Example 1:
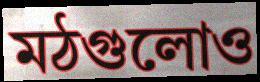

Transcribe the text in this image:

মঠগুলোও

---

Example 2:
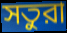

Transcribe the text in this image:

সতুরা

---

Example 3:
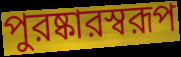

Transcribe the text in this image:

পুরষ্কারস্বরূপ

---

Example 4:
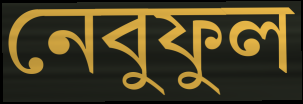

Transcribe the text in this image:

নেবুফুল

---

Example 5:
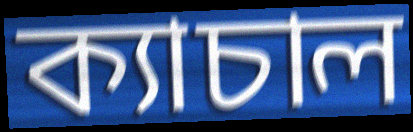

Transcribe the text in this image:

ক্যাচাল